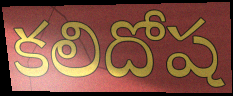
కలిదోష